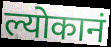
ल्योकानं